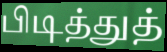
பிடித்துத்